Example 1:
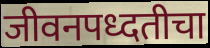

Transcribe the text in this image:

जीवनपध्दतीचा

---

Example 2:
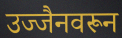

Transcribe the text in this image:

उज्जैनवरून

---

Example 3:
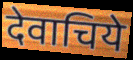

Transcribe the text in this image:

देवाचिये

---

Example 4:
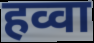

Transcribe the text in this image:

हव्वा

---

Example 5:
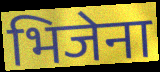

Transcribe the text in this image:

भिजेना